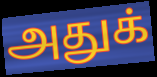
அதுக்